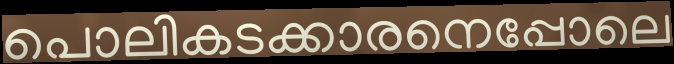
പൊലികടക്കാരനെപ്പോലെ